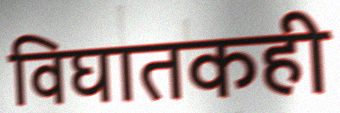
विघातकही